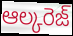
ఆల్కరెజ్